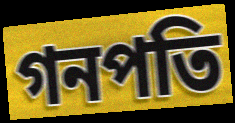
গনপতি